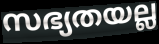
സഭ്യതയല്ല